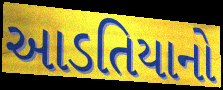
આડતિયાનો